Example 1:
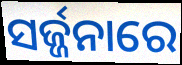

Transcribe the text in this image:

ସର୍ଜ୍ଜନାରେ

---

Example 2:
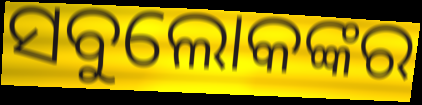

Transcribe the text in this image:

ସବୁଲୋକଙ୍କର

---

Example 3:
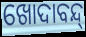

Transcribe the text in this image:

ଖୋଦାବନ୍ଦ୍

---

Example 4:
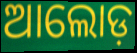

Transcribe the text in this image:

ଆଲୋଡ଼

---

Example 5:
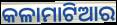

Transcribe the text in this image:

କଳାମାଟିଆର